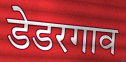
डेडरगाव